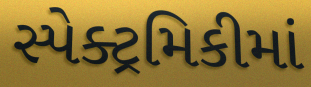
સ્પેક્ટ્રમિકીમાં